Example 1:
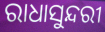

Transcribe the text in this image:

ରାଧାସୁନ୍ଦରୀ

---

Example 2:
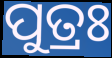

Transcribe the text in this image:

ପୁତ୍ରଃ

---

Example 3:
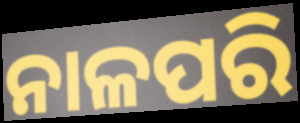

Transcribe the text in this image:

ନାଳପରି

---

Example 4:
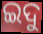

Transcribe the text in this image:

ଇଦୁ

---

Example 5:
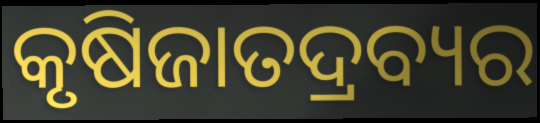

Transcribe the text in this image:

କୃଷିଜାତଦ୍ରବ୍ୟର